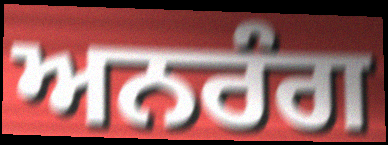
ਅਨਰੰਗ